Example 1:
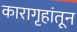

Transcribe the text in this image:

कारागृहांतून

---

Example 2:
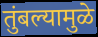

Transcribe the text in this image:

तुंबल्यामुळे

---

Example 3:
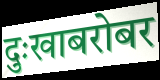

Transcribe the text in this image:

दुःखाबरोबर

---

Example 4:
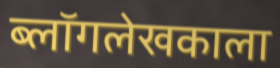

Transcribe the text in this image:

ब्लॉगलेखकाला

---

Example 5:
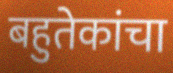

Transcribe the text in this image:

बहुतेकांचा